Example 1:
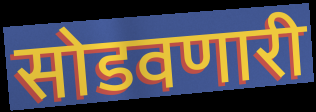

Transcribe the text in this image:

सोडवणारी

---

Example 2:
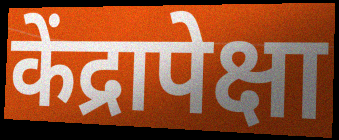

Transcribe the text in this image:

केंद्रापेक्षा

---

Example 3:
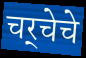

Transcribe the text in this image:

चर्चेचे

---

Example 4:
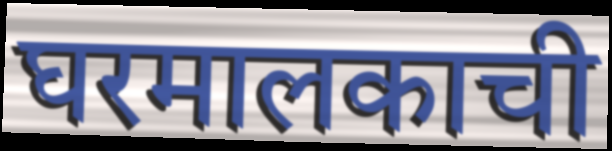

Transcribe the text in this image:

घरमालकाची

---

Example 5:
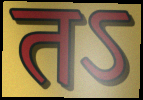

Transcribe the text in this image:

तऽ